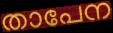
താപേന